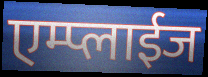
एम्प्लाईज